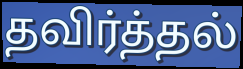
தவிர்த்தல்